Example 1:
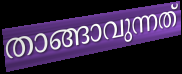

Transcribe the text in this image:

താങ്ങാവുന്നത്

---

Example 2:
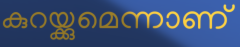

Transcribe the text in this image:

കുറയ്ക്കുമെന്നാണ്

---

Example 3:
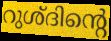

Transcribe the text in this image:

റുശ്ദിന്റെ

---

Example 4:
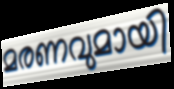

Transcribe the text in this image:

മരണവുമായി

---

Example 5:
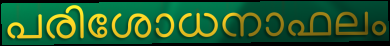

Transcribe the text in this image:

പരിശോധനാഫലം